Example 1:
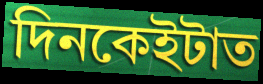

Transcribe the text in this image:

দিনকেইটাত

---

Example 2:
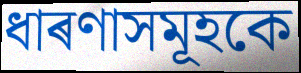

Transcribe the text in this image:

ধাৰণাসমূহকে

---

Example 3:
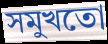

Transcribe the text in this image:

সমুখতো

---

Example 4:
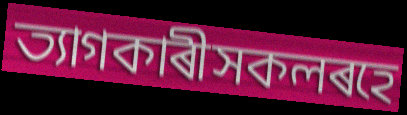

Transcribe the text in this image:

ত্যাগকাৰীসকলৰহে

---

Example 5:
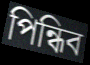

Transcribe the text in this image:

পিন্ধিব